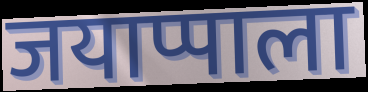
जयाप्पाला